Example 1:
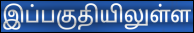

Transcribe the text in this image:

இப்பகுதியிலுள்ள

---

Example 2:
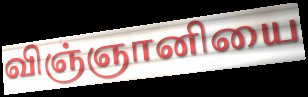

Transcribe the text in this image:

விஞ்ஞானியை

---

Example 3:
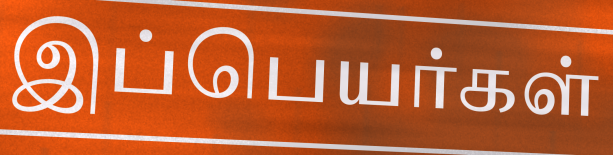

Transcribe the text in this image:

இப்பெயர்கள்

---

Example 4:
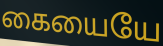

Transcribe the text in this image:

கையையே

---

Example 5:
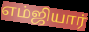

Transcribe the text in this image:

எம்ஜியார்